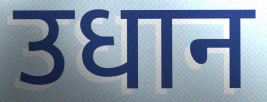
उधान